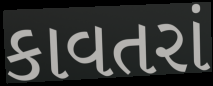
કાવતરાં